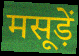
मसूड़ें